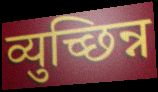
व्युच्छिन्न